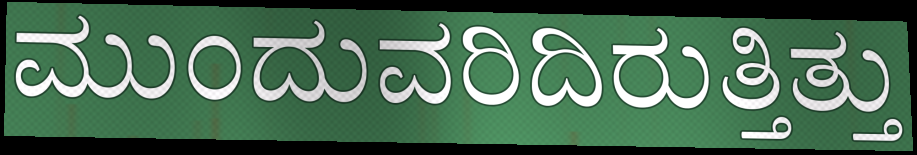
ಮುಂದುವರಿದಿರುತ್ತಿತ್ತು